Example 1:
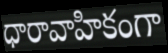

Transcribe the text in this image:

ధారావాహికంగా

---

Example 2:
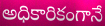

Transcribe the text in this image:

అధికారికంగానే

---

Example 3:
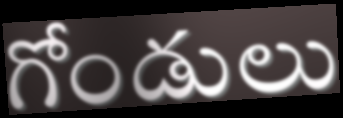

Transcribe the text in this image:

గోండులు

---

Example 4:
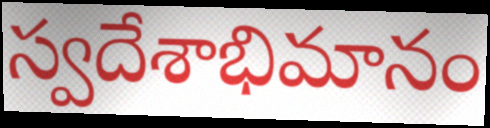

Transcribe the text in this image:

స్వదేశాభిమానం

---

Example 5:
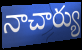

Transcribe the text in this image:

నాచార్యు